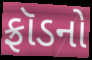
ફ્રૉડનો